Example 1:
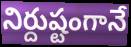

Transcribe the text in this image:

నిర్దుష్టంగానే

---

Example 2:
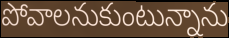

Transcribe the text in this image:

పోవాలనుకుంటున్నాను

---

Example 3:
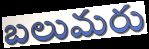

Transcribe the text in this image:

బలుమరు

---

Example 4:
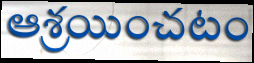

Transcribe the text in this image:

ఆశ్రయించటం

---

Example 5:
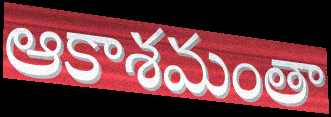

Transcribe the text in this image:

ఆకాశమంతా